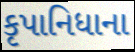
કૃપાનિધાના